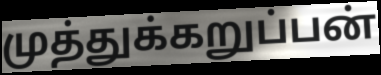
முத்துக்கறுப்பன்